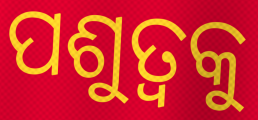
ପଶୁତ୍ୱକୁ